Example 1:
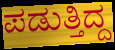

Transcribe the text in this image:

ಪಡುತ್ತಿದ್ದ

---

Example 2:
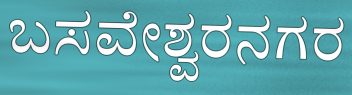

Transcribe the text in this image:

ಬಸವೇಶ್ವರನಗರ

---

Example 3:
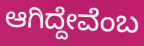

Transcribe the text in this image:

ಆಗಿದ್ದೇವೆಂಬ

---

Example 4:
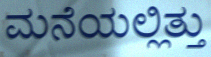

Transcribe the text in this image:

ಮನೆಯಲ್ಲಿತ್ತು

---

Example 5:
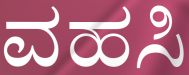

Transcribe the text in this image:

ವಹಸಿ